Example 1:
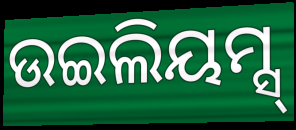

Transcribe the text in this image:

ଉଇଲିୟମ୍ସ୍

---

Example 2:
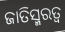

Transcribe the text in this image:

ଜାତିସ୍ମରତ୍ୱ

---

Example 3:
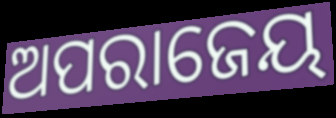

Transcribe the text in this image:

ଅପରାଜେୟ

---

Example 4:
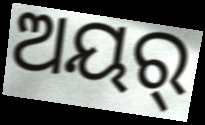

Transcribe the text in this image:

ଅୟର୍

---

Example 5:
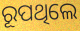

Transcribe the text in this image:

ରୂପଥିଲେ